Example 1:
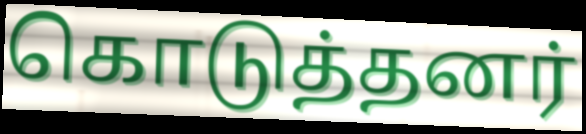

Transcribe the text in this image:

கொடுத்தனர்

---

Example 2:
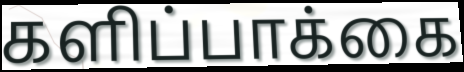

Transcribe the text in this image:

களிப்பாக்கை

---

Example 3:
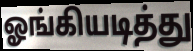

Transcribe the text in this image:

ஓங்கியடித்து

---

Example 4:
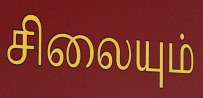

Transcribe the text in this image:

சிலையும்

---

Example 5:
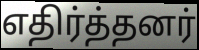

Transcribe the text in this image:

எதிர்த்தனர்